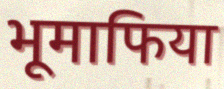
भूमाफिया